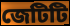
জেটিটি